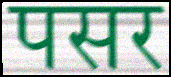
पसर